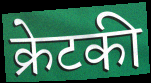
क्रेटकी